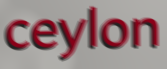
ceylon